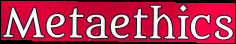
Metaethics